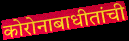
कोरोनाबाधीतांची